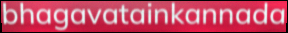
bhagavatainkannada